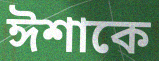
ঈশাকে